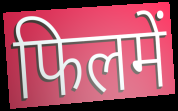
फिलमें